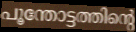
പൂന്തോട്ടത്തിന്റെ